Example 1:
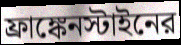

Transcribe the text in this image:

ফ্রাঙ্কেনস্টাইনের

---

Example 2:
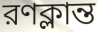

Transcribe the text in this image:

রণক্লান্ত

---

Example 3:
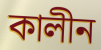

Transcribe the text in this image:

কালীন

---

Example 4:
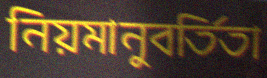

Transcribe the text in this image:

নিয়মানুবর্তিতা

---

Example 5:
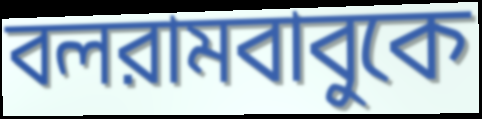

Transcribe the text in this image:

বলরামবাবুকে